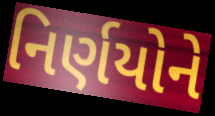
નિર્ણયોને